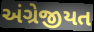
અંગ્રેજીયત